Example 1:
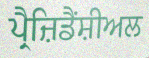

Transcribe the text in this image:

ਪ੍ਰੈਜ਼ਿਡੈਂਸ਼ੀਅਲ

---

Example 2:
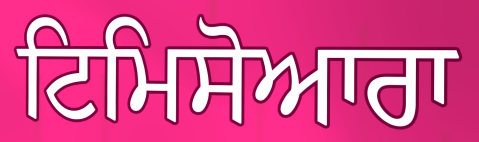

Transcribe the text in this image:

ਟਿਮਿਸੋਆਰਾ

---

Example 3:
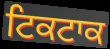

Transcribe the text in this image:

ਟਿਕਟਾਕ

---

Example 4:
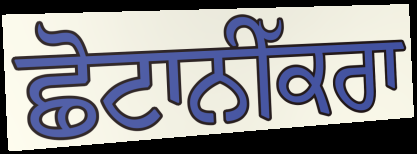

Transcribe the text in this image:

ਛੋਟਾਨੀੱਕਰਾ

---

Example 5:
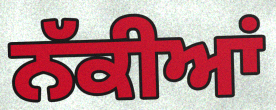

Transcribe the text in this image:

ਨੱਕੀਆਂ